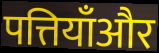
पत्तियाँऔर